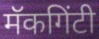
मॅकगिंटी